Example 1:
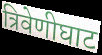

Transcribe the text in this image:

त्रिवेणीघाट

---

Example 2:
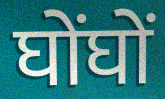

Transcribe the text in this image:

घोंघों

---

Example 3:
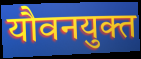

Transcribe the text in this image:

यौवनयुक्त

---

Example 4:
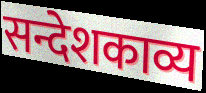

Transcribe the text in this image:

सन्देशकाव्य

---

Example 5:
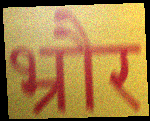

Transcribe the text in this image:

भ्रौर